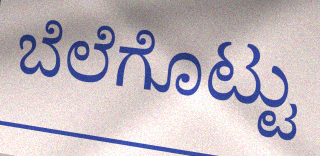
ಬೆಲೆಗೊಟ್ಟು